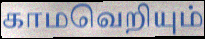
காமவெறியும்